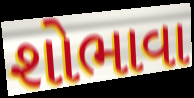
શોભાવા